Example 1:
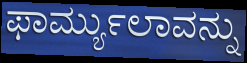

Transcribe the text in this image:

ಫಾರ್ಮ್ಯುಲಾವನ್ನು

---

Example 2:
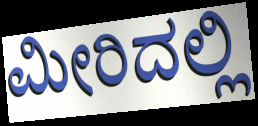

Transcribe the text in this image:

ಮೀರಿದಲ್ಲಿ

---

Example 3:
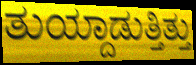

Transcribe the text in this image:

ತುಯ್ದಾಡುತ್ತಿತ್ತು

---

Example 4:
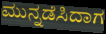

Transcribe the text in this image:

ಮುನ್ನಡೆಸಿದಾಗ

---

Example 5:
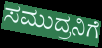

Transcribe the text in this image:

ಸಮುದ್ರನಿಗೆ